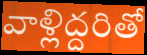
వాళ్లిద్దరితో